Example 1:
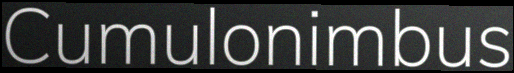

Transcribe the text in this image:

Cumulonimbus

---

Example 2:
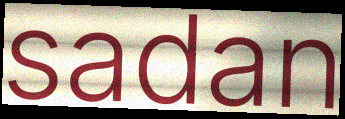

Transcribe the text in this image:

sadan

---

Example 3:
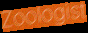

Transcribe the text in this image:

Zoologist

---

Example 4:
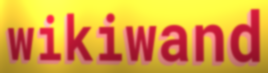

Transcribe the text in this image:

wikiwand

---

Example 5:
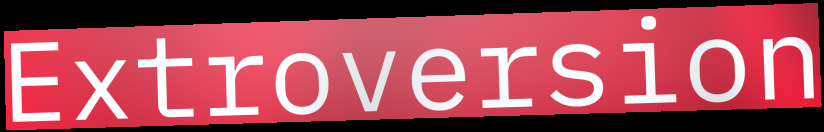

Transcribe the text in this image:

Extroversion